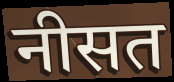
नीसत